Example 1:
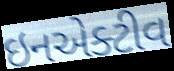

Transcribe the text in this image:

ઇનએક્ટીવ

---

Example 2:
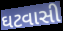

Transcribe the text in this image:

ઘટવાસી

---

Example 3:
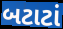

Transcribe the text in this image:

બટાટાં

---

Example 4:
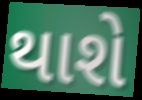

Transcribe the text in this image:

થાશે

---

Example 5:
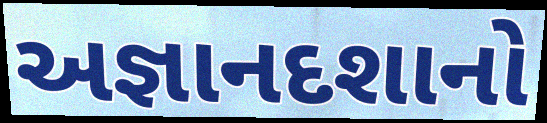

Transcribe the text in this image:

અજ્ઞાનદશાનો